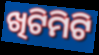
ଖିଟିମିଟି